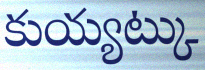
కుయ్యట్కు